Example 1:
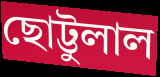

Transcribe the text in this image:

ছোট্টুলাল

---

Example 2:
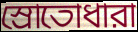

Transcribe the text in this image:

স্রোতোধারা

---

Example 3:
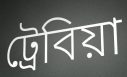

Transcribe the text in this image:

ট্রেবিয়া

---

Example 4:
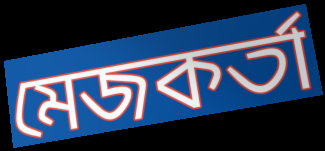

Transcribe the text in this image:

মেজকর্তা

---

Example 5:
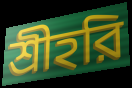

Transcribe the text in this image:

শ্রীহরি